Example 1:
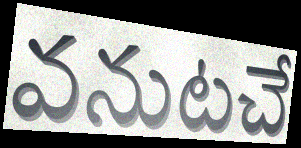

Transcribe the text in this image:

వనుటచే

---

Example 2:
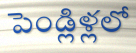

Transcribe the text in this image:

పెండ్లిళ్లలో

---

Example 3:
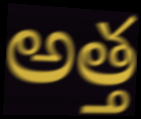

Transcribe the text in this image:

అత్త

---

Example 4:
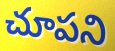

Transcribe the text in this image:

చూపని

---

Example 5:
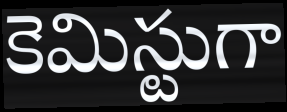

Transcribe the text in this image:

కెమిస్టుగా